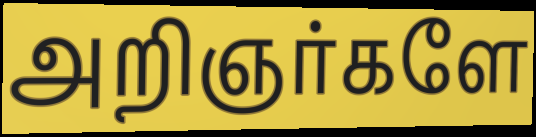
அறிஞர்களே